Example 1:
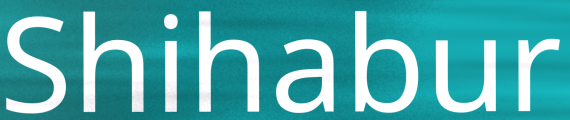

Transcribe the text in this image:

Shihabur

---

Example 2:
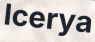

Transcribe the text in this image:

Icerya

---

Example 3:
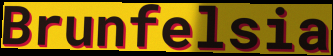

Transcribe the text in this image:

Brunfelsia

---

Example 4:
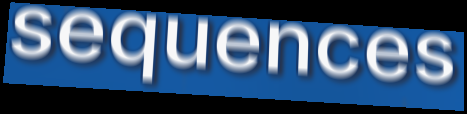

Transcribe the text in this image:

sequences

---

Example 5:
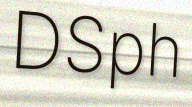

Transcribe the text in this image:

DSph